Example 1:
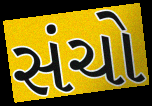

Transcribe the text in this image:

સંચો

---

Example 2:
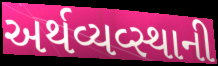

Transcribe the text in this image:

અર્થવ્યવ્સ્થાની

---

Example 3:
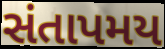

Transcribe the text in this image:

સંતાપમય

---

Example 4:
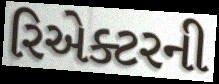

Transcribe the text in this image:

રિએક્ટરની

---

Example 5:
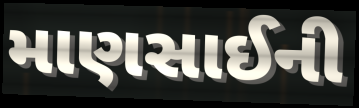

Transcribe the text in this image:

માણસાઈની